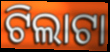
ଟିଲାଟା